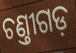
ଚଣ୍ତୀଗଡ଼